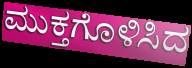
ಮುಕ್ತಗೊಳಿಸಿದ